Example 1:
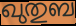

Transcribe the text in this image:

ഖുതുബ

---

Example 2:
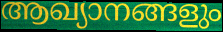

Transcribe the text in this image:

ആഖ്യാനങ്ങളും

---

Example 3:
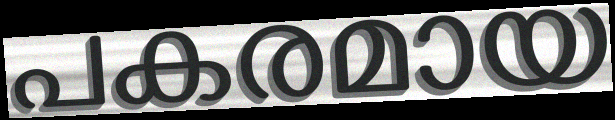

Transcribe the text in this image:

പകരമായ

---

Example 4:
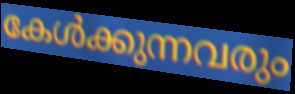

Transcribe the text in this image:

കേൾക്കുന്നവരും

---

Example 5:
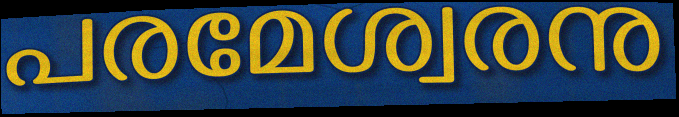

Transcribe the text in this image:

പരമേശ്വരനു